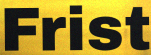
Frist